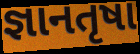
જ્ઞાનતૃષા